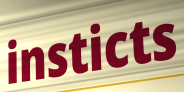
insticts